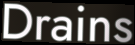
Drains